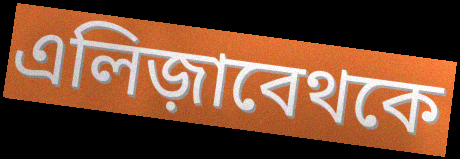
এলিজ়াবেথকে